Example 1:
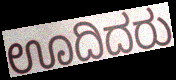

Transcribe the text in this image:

ಊದಿದರು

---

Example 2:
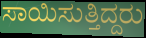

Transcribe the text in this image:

ಸಾಯಿಸುತ್ತಿದ್ದರು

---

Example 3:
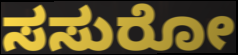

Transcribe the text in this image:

ಸಸುರೋ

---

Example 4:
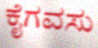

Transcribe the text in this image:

ಕೈಗವಸು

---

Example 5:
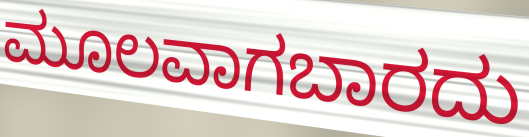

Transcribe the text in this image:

ಮೂಲವಾಗಬಾರದು